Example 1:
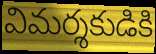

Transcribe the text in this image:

విమర్శకుడికి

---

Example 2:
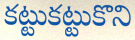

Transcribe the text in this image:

కట్టుకట్టుకొని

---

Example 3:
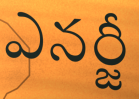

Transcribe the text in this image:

ఎనర్జీ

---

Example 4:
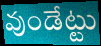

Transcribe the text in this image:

వుండేట్టు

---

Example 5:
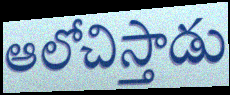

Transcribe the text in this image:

ఆలోచిస్తాడు